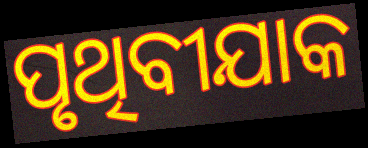
ପୃଥିବୀଯାକ